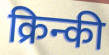
क्रिन्की